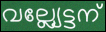
വല്ല്യേട്ടന്